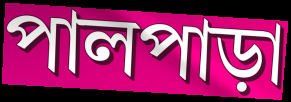
পালপাড়া